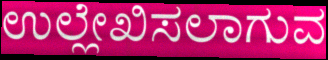
ಉಲ್ಲೇಖಿಸಲಾಗುವ